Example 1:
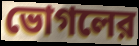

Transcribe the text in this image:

ভোগলের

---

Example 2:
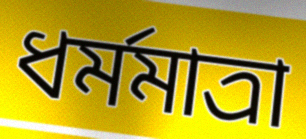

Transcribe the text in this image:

ধর্মমাত্রা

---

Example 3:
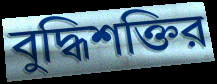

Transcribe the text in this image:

বুদ্ধিশক্তির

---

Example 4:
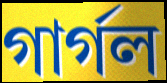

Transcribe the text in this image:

গার্গল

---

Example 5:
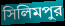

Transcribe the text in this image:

সিলিমপুর